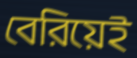
বেরিয়েই